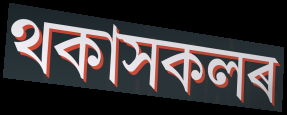
থকাসকলৰ